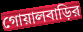
গোয়ালবাড়ির